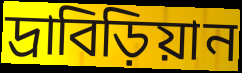
দ্রাবিড়িয়ান